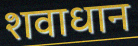
शवाधान